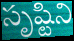
సృష్టిని